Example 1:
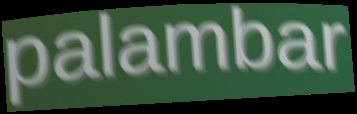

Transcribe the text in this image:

palambar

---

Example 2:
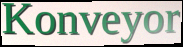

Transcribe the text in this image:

Konveyor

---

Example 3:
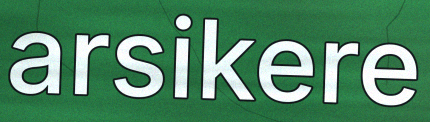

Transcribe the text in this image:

arsikere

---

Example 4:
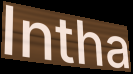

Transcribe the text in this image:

Intha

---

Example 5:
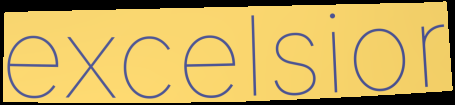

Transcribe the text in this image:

excelsior